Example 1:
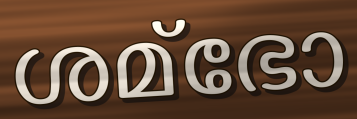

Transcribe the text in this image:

ശമ്ഭോ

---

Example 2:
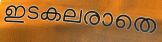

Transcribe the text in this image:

ഇടകലരാതെ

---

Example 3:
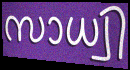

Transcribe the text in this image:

സാധ്വി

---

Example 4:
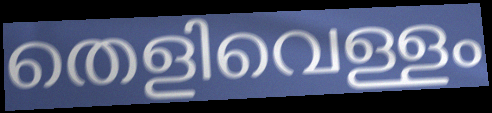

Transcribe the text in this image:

തെളിവെള്ളം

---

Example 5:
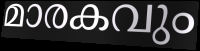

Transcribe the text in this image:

മാരകവും